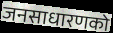
जनसाधारणको